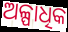
ଅଳ୍ପାଧିକ